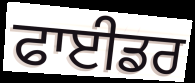
ਫਾਈਡਰ